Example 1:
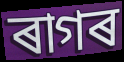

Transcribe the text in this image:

ৰাগৰ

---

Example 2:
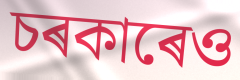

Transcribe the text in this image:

চৰকাৰেও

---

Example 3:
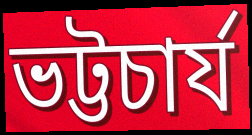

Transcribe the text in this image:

ভট্টচাৰ্য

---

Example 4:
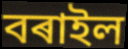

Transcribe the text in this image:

বৰাইল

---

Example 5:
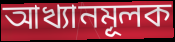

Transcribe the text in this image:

আখ্যানমূলক